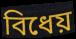
বিধেয়